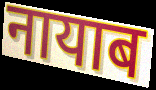
नायाब